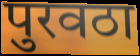
पुरवठा